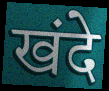
खंदे